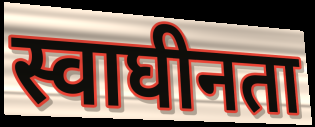
स्वाघीनता